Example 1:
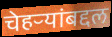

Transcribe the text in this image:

चेहऱ्यांबद्दल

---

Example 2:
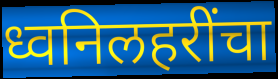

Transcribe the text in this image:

ध्वनिलहरींचा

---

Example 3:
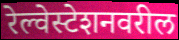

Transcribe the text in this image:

रेल्वेस्टेशनवरील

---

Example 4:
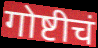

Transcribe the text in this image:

गोष्टीचं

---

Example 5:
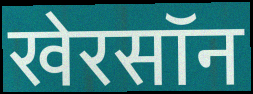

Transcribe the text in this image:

खेरसॉन